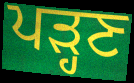
ਪੜ੍ਹਣ